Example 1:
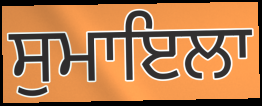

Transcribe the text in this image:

ਸੁਮਾਇਲਾ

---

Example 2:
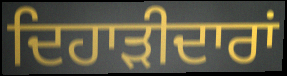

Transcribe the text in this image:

ਦਿਹਾੜੀਦਾਰਾਂ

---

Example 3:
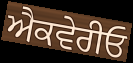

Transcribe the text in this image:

ਐਕਵੇਰੀਓ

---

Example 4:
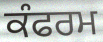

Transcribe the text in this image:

ਕੰਫਰਮ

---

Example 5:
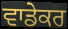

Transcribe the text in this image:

ਵਾਡੇਕਰ